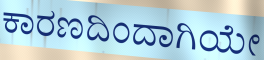
ಕಾರಣದಿಂದಾಗಿಯೇ